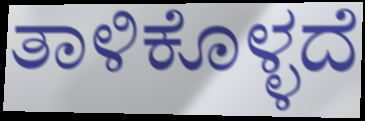
ತಾಳಿಕೊಳ್ಳದೆ